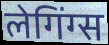
लेगिंग्स